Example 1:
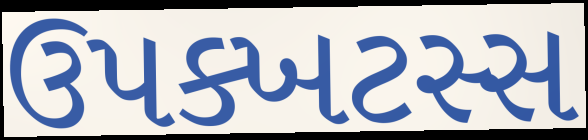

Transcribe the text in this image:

ઉપક્ખટસ્સ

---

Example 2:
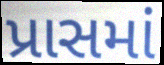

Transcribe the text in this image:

પ્રાસમાં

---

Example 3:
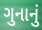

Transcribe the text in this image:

ગુનાનું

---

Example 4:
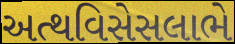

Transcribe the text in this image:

અત્થવિસેસલાભે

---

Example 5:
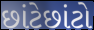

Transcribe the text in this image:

છાંટેછાંટો